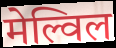
मेल्विल